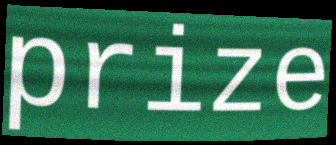
prize